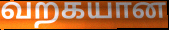
வறகயான